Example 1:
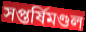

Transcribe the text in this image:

সপ্তর্ষিমণ্ডল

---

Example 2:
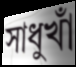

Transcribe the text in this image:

সাধুখাঁ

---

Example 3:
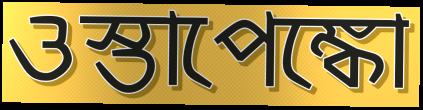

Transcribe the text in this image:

ওস্তাপেঙ্কো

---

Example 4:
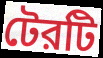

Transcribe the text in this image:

টেরটি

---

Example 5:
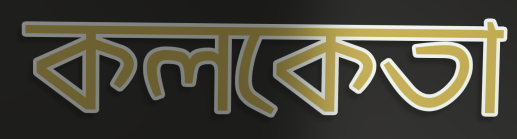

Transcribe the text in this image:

কলকেতা